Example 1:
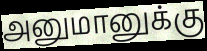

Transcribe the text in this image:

அனுமானுக்கு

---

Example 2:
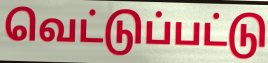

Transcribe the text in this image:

வெட்டுப்பட்டு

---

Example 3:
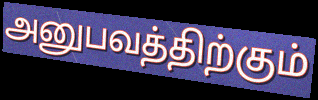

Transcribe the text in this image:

அனுபவத்திற்கும்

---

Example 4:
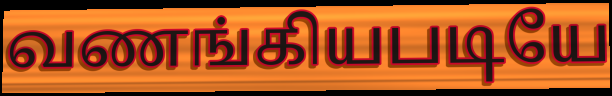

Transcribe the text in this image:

வணங்கியபடியே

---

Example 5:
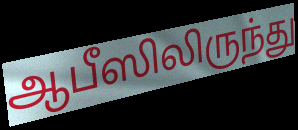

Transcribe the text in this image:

ஆபீஸிலிருந்து